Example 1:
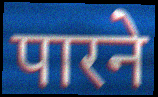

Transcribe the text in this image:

पारने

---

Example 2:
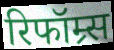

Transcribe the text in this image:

रिफॉम्र्स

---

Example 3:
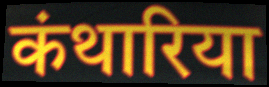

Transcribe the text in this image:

कंथारिया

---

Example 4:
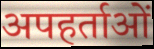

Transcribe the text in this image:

अपहर्ताओं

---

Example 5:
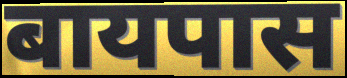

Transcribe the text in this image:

बायपास